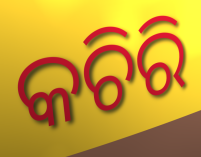
କଚିରି